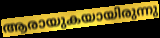
ആരായുകയായിരുന്നു